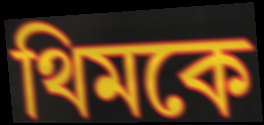
থিমকে